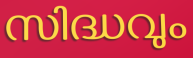
സിദ്ധവും